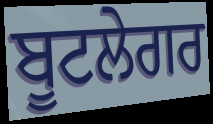
ਬੂਟਲੇਗਰ